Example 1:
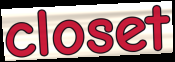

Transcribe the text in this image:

closet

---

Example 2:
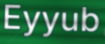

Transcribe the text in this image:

Eyyub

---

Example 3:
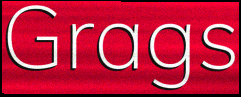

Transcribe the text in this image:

Grags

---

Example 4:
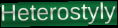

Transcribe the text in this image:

Heterostyly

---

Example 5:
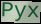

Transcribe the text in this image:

Pyx